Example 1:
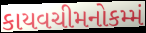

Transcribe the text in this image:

કાયવચીમનોકમ્મં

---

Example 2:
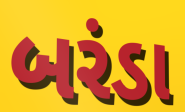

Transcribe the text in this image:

બરંડા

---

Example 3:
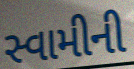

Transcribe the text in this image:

સ્વામીની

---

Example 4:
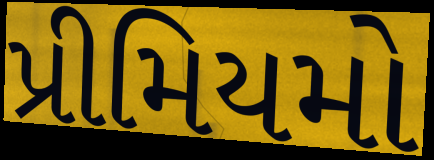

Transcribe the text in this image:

પ્રીમિયમો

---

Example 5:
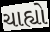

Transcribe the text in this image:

ચાહ્યો